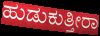
ಹುಡುಕುತ್ತೀರಾ